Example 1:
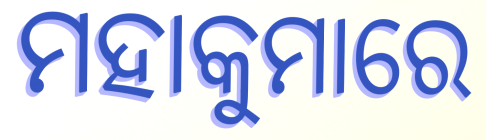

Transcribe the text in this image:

ମହାକୁମାରେ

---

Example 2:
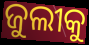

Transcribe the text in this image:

ଜୁଲୀକୁ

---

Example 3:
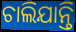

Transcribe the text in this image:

ଚାଲିଯାନ୍ତି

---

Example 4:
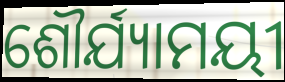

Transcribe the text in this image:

ଶୌର୍ଯ୍ୟାମୟୀ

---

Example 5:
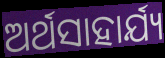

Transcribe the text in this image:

ଅର୍ଥସାହାର୍ଯ୍ୟ